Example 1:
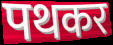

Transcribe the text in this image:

पथकर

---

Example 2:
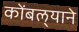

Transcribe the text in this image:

कोंबल्याने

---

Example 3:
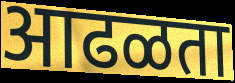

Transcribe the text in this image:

आढळता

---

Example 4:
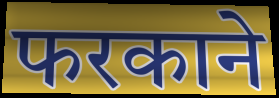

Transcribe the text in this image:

फरकाने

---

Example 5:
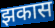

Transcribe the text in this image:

झकास